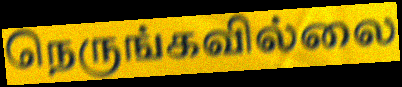
நெருங்கவில்லை